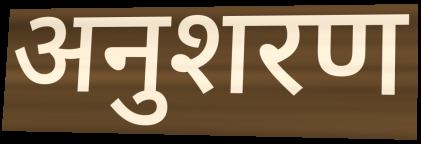
अनुशरण